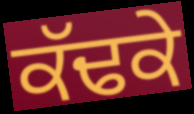
ਕੱਢਕੇ